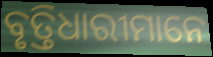
ବୃତ୍ତିଧାରୀମାନେ